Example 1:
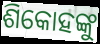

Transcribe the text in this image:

ଶିକୋହଙ୍କୁ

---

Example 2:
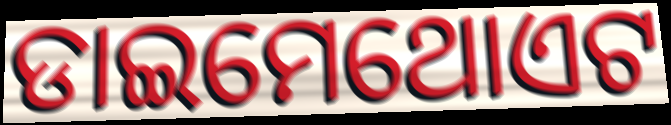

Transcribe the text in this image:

ଡାଇମେଥୋଏଟ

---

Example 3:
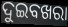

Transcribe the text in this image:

ଦୁଇବଖରା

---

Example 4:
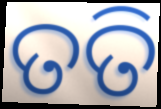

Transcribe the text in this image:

ତତି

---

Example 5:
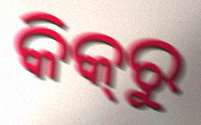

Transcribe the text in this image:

କିକ୍‍ରୁ